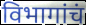
विभागांचं